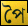
পৈ